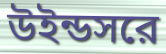
উইন্ডসরে